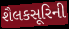
શૈલકસૂરિની